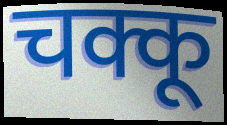
चक्कू